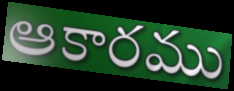
ఆకారము